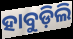
ହାବୁଡ଼ିଲି